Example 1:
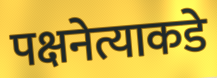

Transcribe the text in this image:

पक्षनेत्याकडे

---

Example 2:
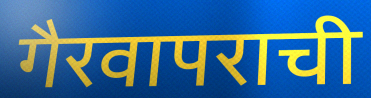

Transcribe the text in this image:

गैरवापराची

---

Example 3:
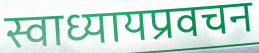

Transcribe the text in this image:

स्वाध्यायप्रवचन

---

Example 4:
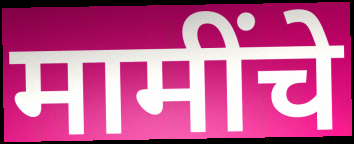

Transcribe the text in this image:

मामींचे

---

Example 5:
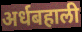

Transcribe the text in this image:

अर्धबहाली